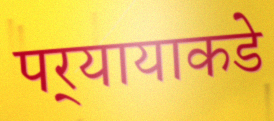
पर्यायाकडे